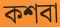
কশবা